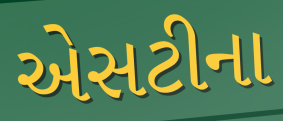
એસટીના